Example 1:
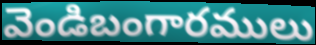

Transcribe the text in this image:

వెండిబంగారములు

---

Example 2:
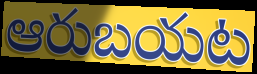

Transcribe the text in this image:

ఆరుబయట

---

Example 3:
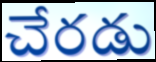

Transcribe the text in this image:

చేరడు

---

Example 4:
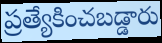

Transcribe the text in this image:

ప్రత్యేకించబడ్డారు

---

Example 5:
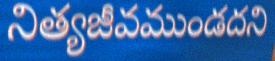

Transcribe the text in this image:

నిత్యజీవముండదని